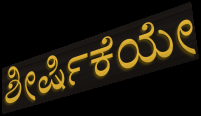
ಶೀರ್ಷಿಕೆಯೇ